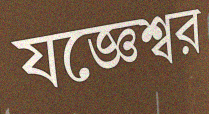
যজ্ঞেশ্বর